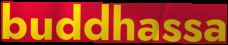
buddhassa